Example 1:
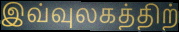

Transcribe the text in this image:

இவ்வுலகத்திற்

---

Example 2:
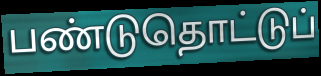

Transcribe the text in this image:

பண்டுதொட்டுப்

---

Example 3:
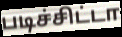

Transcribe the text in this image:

படிச்சிட்டா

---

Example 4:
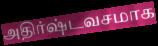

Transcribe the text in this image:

அதிர்ஷ்டவசமாக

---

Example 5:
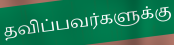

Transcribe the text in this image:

தவிப்பவர்களுக்கு